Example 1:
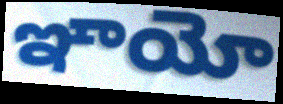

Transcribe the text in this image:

ఞాయో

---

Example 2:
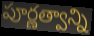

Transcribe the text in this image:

పూర్ణత్వాన్ని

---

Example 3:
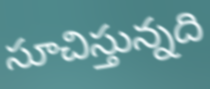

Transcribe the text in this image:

సూచిస్తున్నది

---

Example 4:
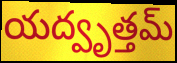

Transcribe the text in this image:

యద్వృత్తమ్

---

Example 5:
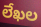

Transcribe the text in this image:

లేఖల